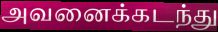
அவனைக்கடந்து